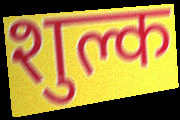
शुल्‍क